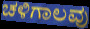
ಚಳಿಗಾಲವು